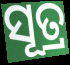
ସୂତ୍ର